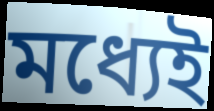
মধ্যেই